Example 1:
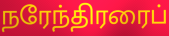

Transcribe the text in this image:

நரேந்திரரைப்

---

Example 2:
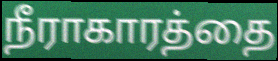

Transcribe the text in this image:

நீராகாரத்தை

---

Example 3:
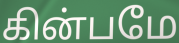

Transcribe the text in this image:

கின்பமே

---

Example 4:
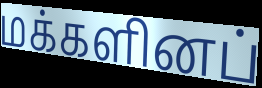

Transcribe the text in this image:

மக்களினப்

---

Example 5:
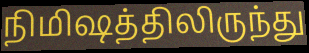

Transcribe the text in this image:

நிமிஷத்திலிருந்து